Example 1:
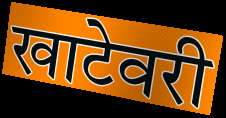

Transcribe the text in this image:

खाटेवरी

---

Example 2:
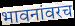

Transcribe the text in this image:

भावनांवरच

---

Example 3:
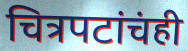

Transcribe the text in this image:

चित्रपटांचंही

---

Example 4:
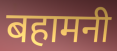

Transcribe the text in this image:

बहामनी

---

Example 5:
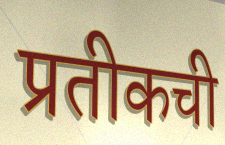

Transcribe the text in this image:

प्रतीकची